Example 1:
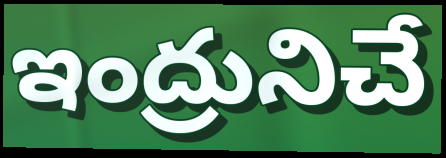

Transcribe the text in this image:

ఇంద్రునిచే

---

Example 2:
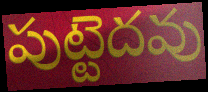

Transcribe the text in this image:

పుట్టెదవు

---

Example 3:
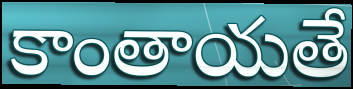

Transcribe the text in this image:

కాంతాయతే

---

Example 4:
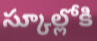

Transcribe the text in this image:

స్కూల్లోకి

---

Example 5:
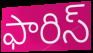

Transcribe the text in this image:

ఫారిస్